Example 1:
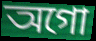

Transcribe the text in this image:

অগো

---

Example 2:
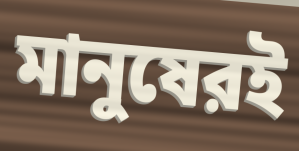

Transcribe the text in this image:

মানুষেরই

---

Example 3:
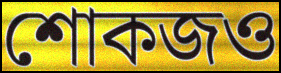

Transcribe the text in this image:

শোকজও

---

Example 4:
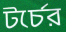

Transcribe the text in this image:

টর্চের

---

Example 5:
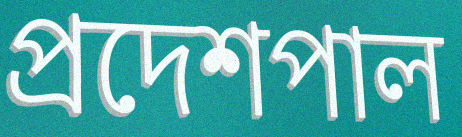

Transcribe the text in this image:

প্রদেশপাল